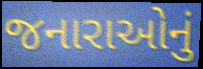
જનારાઓનું